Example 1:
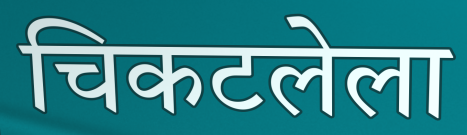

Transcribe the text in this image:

चिकटलेला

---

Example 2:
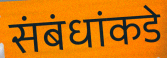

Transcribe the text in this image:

संबंधांकडे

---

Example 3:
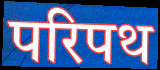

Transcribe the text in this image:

परिपथ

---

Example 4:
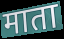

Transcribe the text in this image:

माता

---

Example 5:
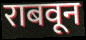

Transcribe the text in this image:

राबवून